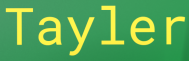
Tayler